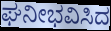
ಘನೀಭವಿಸಿದ